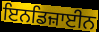
ਇਨਡਿਜ਼ਾਈਨ